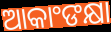
ଆକାଂଙକ୍ଷା